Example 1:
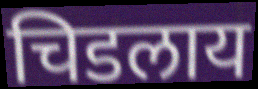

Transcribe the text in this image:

चिडलाय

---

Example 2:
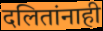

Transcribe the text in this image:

दलितांनाही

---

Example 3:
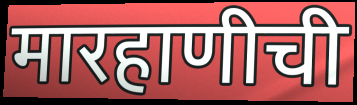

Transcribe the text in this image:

मारहाणीची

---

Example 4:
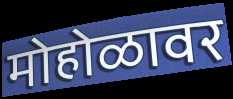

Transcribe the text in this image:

मोहोळावर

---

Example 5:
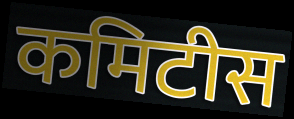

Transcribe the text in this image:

कमिटीस